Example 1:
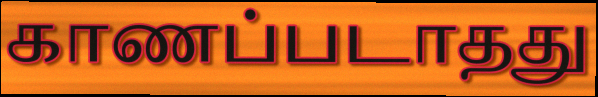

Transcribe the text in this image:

காணப்படாதது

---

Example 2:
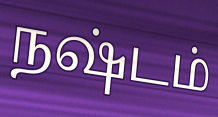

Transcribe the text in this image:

நஷ்டம்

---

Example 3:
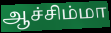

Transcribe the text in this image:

ஆச்சிம்மா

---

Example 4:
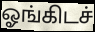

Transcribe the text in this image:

ஓங்கிடச்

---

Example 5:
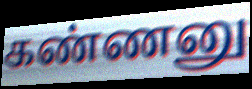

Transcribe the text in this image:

கண்ணனு